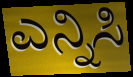
ಎನ್ನಿಸಿ